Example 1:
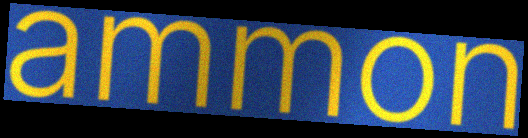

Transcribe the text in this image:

ammon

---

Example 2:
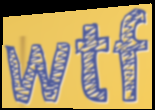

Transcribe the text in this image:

wtf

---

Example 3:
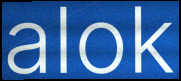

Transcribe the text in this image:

alok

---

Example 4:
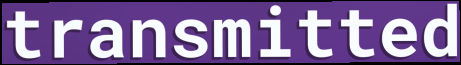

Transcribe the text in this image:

transmitted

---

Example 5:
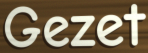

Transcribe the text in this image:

Gezet